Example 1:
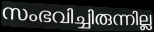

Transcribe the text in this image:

സംഭവിച്ചിരുന്നില്ല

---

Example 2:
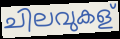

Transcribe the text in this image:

ചിലവുകള്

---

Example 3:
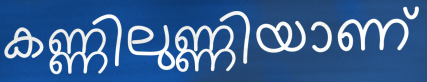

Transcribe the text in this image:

കണ്ണിലുണ്ണിയാണ്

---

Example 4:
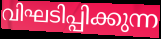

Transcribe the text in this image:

വിഘടിപ്പിക്കുന്ന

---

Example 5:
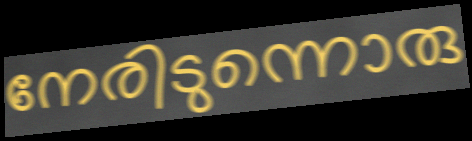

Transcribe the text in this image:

നേരിടുന്നൊരു